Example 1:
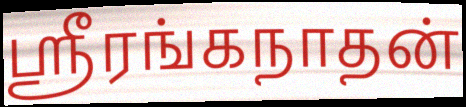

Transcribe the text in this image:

ஸ்ரீரங்கநாதன்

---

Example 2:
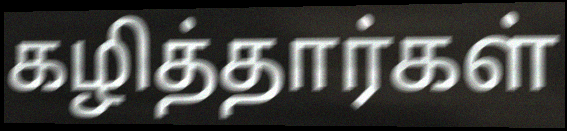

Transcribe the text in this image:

கழித்தார்கள்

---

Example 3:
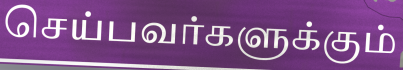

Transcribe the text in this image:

செய்பவர்களுக்கும்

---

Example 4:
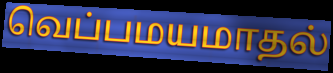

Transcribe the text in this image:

வெப்பமயமாதல்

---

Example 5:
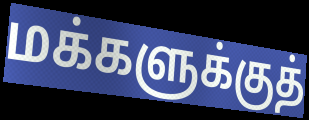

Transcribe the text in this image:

மக்களுக்குத்